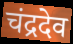
चंद्रदेव